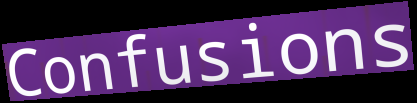
Confusions